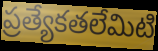
ప్రత్యేకతలేమిటి